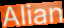
Alian